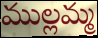
ముల్లమ్మ